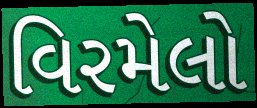
વિરમેલો